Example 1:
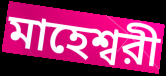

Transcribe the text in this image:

মাহেশ্বরী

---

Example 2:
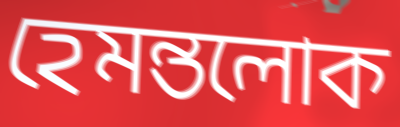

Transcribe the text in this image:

হেমন্তলোক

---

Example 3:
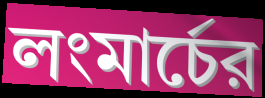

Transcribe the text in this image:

লংমার্চের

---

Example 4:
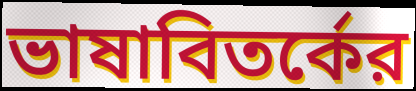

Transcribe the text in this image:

ভাষাবিতর্কের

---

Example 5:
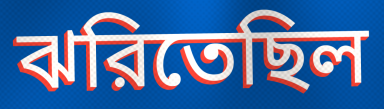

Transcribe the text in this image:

ঝরিতেছিল